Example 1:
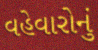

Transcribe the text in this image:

વહેવારોનું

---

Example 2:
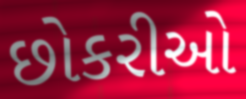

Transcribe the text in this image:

છોકરીઓ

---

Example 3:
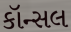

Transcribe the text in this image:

કૉન્સલ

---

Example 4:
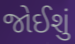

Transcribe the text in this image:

જોઈશું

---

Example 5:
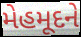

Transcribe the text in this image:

મેહમૂદને